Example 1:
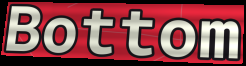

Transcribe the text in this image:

Bottom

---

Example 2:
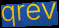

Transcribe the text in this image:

qrev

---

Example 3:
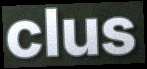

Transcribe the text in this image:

clus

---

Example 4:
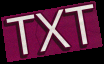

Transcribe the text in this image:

TXT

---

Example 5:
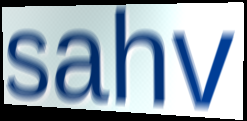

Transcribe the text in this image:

sahv